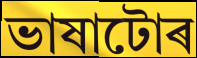
ভাষাটোৰ